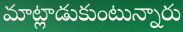
మాట్లాడుకుంటున్నారు